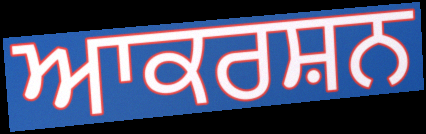
ਆਕਰਸ਼ਨ